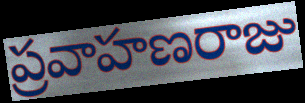
ప్రవాహణరాజు